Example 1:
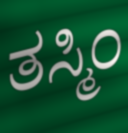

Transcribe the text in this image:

ತಸ್ಮಿಂ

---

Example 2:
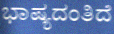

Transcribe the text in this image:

ಭಾಷ್ಯದಂತಿದೆ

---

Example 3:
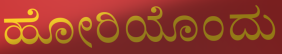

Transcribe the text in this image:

ಹೋರಿಯೊಂದು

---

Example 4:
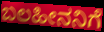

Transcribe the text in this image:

ಬಲಹೀನನಿಗೆ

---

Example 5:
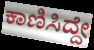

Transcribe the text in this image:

ಕಾಣಿಸಿದ್ದೇ